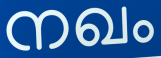
നഖം